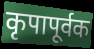
कृपापूर्वक